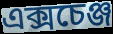
এক্সচেঞ্জ